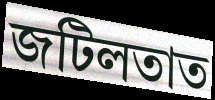
জটিলতাত